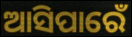
ଆସିପାରେଁ